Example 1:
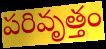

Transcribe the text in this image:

పరివృత్తం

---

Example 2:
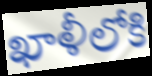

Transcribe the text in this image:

ఖాళీలోకి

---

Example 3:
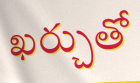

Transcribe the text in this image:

ఖర్చుతో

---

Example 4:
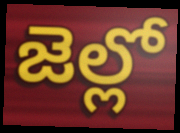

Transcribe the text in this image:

జెల్లో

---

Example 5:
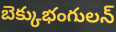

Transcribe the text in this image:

బెక్కుభంగులన్